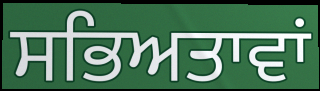
ਸਭਿਅਤਾਵਾਂ